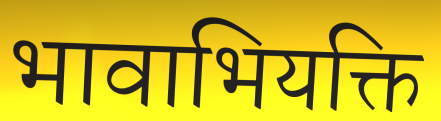
भावाभियक्ति